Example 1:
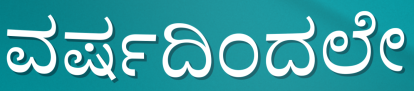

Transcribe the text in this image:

ವರ್ಷದಿಂದಲೇ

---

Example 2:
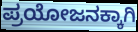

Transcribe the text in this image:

ಪ್ರಯೋಜನಕ್ಕಾಗಿ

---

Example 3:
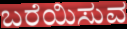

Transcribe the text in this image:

ಬರೆಯಿಸುವ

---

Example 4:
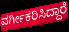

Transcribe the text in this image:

ವರ್ಗೀಕರಿಸಿದ್ದಾರೆ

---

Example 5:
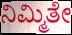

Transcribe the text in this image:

ನಿಮ್ಮಿತೇ